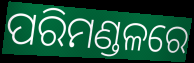
ପରିମଣ୍ଡଳରେ